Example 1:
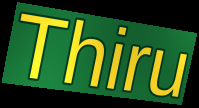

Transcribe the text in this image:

Thiru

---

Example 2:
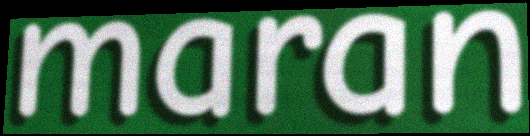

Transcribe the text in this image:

maran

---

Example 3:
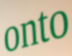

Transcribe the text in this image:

onto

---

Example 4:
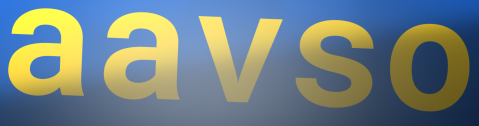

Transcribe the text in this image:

aavso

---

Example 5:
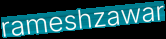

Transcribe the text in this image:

rameshzawar